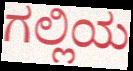
ಗಲ್ಲಿಯ